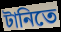
টানিতে